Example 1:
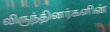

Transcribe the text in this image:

விருந்தினர்களின்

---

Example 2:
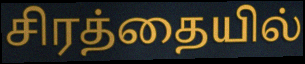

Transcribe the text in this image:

சிரத்தையில்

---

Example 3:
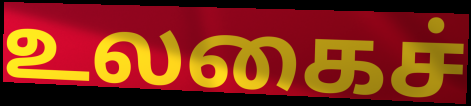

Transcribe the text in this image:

உலகைச்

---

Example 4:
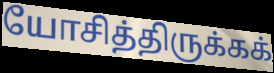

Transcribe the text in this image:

யோசித்திருக்கக்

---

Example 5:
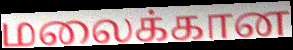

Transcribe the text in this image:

மலைக்கான